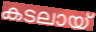
കടലായ്